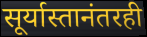
सूर्यास्तानंतरही